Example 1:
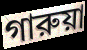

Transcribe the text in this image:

গারুয়া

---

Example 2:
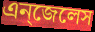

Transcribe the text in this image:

এন্জেলেস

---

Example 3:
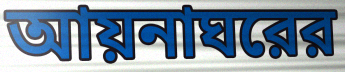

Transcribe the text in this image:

আয়নাঘরের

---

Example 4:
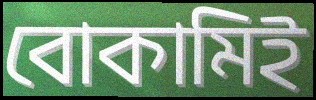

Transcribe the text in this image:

বোকামিই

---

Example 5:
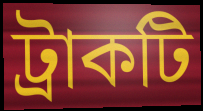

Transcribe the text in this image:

ট্রাকটি